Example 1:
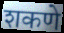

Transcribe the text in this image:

शकणे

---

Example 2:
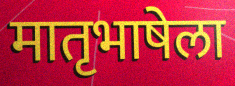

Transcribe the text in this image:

मातृभाषेला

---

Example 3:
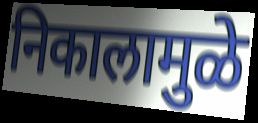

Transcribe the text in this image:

निकालामुळे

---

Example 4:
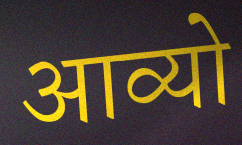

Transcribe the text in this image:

आव्यो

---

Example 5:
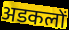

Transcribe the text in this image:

अडकलों